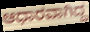
ಆಧಾರವಾಗಿದ್ದ